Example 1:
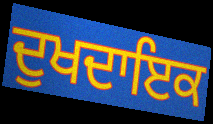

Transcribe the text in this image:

ਦੁਖਦਾਇਕ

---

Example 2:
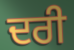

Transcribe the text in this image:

ਦਰੀ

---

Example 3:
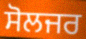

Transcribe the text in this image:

ਸੋਲਜਰ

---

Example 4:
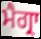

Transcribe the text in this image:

ਮੈਗ੍ਰਾ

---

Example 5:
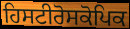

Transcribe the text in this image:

ਹਿਸਟੀਰੋਸਕੋਪਿਕ